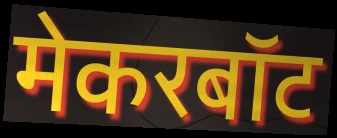
मेकरबॉट